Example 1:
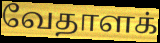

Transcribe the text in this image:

வேதாளக்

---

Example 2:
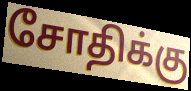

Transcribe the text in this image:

சோதிக்கு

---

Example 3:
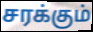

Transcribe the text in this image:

சரக்கும்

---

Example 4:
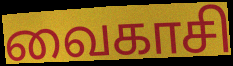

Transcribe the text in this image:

வைகாசி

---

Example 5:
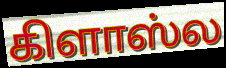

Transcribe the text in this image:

கிளாஸ்ல